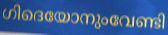
ഗിദെയോനുംവേണ്ടി